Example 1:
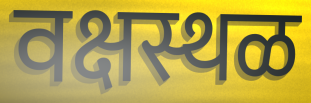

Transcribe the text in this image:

वक्षस्थळ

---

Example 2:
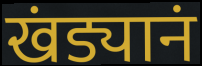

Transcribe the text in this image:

खंड्यानं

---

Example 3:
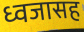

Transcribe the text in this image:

ध्वजासह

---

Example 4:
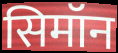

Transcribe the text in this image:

सिमॉन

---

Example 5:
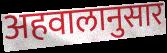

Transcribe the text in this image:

अहवालानुसार